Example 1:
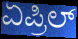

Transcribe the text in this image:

ಏಪ್ರಿಲ್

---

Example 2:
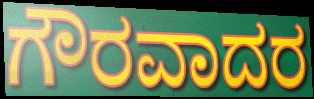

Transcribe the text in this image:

ಗೌರವಾದರ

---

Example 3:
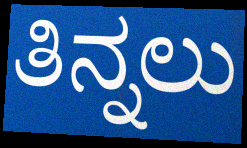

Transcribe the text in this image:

ತಿನ್ನಲು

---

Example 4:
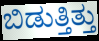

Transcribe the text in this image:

ಬಿಡುತ್ತಿತ್ತು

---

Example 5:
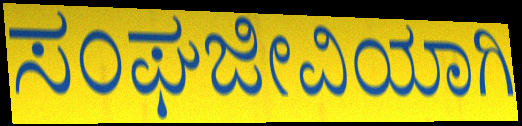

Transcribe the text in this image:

ಸಂಘಜೀವಿಯಾಗಿ